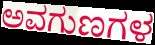
ಅವಗುಣಗಳ